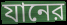
যানের